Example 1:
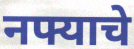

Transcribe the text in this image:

नफ्याचे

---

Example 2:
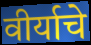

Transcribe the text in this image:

वीर्याचे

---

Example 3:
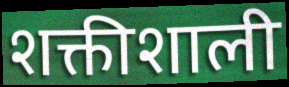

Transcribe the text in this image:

शक्तीशाली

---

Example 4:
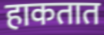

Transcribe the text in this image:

हाकतात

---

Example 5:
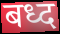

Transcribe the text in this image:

बध्द